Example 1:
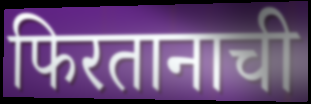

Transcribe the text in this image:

फिरतानाची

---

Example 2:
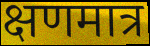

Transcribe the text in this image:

क्षणमात्र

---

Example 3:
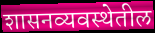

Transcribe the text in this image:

शासनव्यवस्थेतील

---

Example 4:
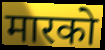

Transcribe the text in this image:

मारको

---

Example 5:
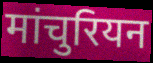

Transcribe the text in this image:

मांचुरियन